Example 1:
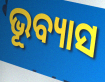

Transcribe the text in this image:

ଭୂବ୍ୟାସ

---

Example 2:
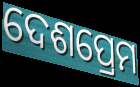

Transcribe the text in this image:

ଦେଶପ୍ରେମ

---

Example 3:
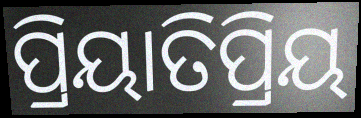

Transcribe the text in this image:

ପ୍ରିୟାତିପ୍ରିୟ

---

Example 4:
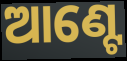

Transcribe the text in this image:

ଆଣ୍ଟେ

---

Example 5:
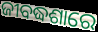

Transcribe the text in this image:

ଜୀବଦ୍ଧଶାରେ